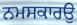
ਨਮਸਕਾਰਉ